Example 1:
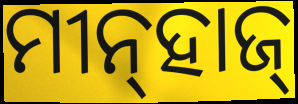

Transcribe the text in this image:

ମୀନ୍‌ହାଜ୍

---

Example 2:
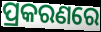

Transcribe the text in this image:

ପ୍ରକରଣରେ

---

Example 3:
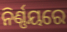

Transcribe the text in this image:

ନିର୍ଣ୍ଣୟରେ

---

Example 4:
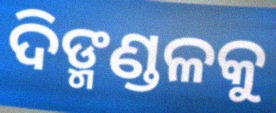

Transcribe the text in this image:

ଦିଙ୍ମଣ୍ଡଳକୁ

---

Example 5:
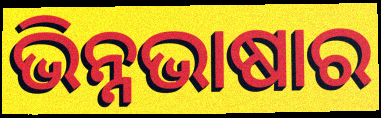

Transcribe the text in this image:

ଭିନ୍ନଭାଷାର